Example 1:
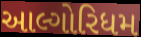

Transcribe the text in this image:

આલ્ગોરિધમ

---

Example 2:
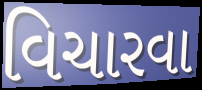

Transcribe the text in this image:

વિચારવા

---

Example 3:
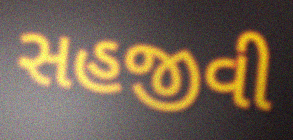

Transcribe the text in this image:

સહજીવી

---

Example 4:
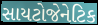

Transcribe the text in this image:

સાયટોજેનેટિક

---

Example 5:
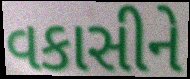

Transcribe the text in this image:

વકાસીને